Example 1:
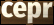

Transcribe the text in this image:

cepr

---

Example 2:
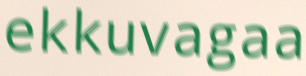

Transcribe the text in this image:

ekkuvagaa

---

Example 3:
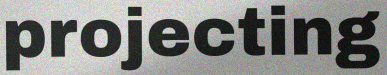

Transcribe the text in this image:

projecting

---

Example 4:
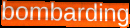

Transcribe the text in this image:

bombarding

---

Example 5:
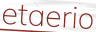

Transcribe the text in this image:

etaerio